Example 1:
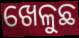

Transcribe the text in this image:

ଖେଳୁଛ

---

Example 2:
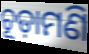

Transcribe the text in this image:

ଚୂଡ଼ାମଣି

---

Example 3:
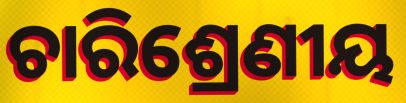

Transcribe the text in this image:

ଚାରିଶ୍ରେଣୀୟ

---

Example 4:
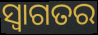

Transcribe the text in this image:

ସ୍ଵାଗତର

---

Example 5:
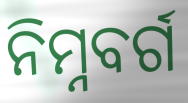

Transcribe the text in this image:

ନିମ୍ନବର୍ଗ